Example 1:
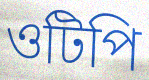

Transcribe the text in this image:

ওটিপি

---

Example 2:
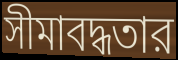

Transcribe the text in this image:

সীমাবদ্ধতার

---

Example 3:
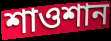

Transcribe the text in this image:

শাওশান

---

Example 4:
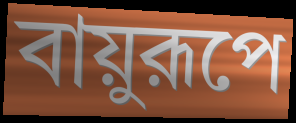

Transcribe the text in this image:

বায়ুরূপে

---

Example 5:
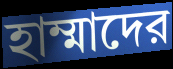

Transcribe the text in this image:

হাম্মাদের